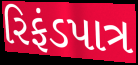
રિફંડપાત્ર